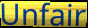
Unfair